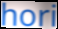
hori